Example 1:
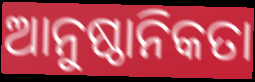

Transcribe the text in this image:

ଆନୁଷ୍ଠାନିକତା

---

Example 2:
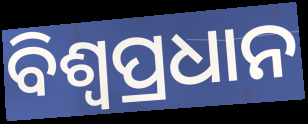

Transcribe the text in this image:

ବିଶ୍ୱପ୍ରଧାନ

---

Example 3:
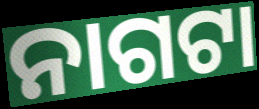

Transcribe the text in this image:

ନାଗଟା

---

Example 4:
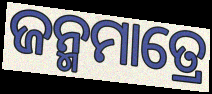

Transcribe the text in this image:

ଜନ୍ମମାତ୍ରେ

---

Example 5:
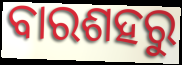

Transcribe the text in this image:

ବାରଶହରୁ